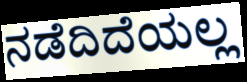
ನಡೆದಿದೆಯಲ್ಲ